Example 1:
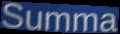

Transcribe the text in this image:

Summa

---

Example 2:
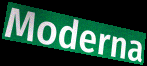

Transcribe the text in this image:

Moderna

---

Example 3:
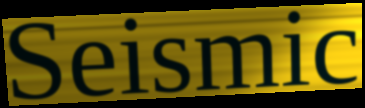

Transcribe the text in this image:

Seismic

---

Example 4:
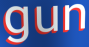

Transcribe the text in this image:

gun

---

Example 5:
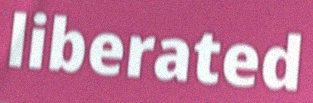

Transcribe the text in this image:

liberated